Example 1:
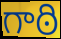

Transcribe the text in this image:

గాఠి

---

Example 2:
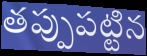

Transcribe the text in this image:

తప్పుపట్టిన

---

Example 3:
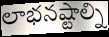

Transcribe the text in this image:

లాభనష్టాల్ని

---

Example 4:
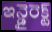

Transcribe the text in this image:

ఇన్డైరెక్ట్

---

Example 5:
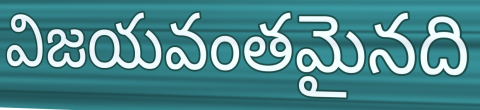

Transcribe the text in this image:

విజయవంతమైనది